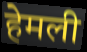
हेमली